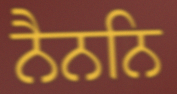
ਨੈਨਨਿ